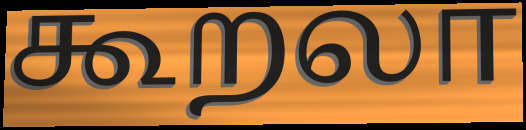
கூறலா